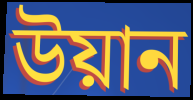
উয়ান